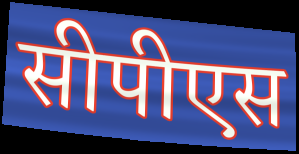
सीपीएस